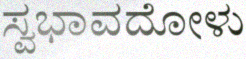
ಸ್ವಭಾವದೋಳು